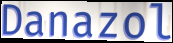
Danazol